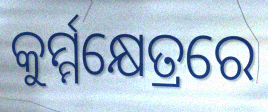
କୁର୍ମ୍ମକ୍ଷେତ୍ରରେ